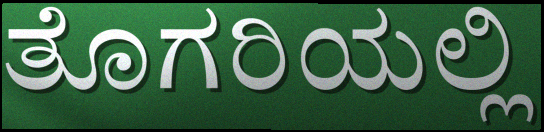
ತೊಗರಿಯಲ್ಲಿ